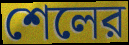
শেলের